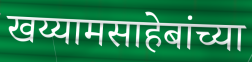
खय्यामसाहेबांच्या